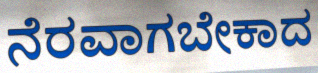
ನೆರವಾಗಬೇಕಾದ